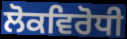
ਲੋਕਵਿਰੋਧੀ